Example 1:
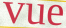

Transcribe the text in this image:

vue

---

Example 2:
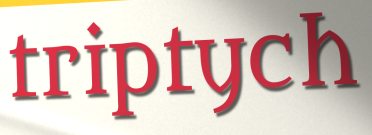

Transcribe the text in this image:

triptych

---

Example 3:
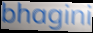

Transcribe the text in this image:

bhagini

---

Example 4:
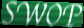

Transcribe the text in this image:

SWOP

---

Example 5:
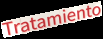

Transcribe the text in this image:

Tratamiento